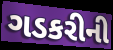
ગડકરીની